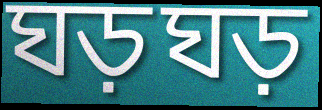
ঘড়ঘড়